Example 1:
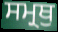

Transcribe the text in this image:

ਸਮ੍ਰਥੁ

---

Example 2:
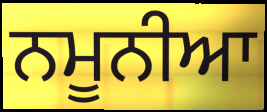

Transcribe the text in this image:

ਨਮੂਨੀਆ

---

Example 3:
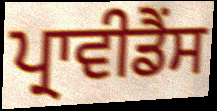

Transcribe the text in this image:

ਪ੍ਰਾਵੀਡੈਂਸ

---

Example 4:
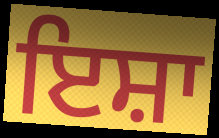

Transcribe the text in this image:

ਇਸ਼ਾ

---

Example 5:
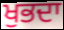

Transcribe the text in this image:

ਖੁਭਦਾ